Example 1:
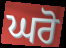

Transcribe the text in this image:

ਘਰੋ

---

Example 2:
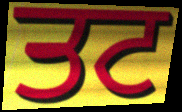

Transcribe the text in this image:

ਤਟ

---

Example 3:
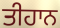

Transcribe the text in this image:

ਤੀਹਾਨ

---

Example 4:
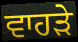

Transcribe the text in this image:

ਵਾਹੜੇ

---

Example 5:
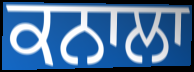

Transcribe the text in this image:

ਕਨਾਲਾ